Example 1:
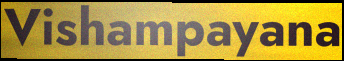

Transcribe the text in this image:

Vishampayana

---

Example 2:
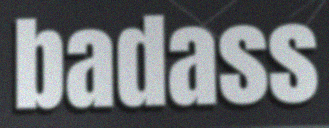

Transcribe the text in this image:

badass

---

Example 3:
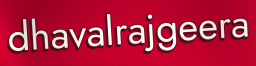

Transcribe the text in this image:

dhavalrajgeera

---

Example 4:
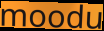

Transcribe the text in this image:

moodu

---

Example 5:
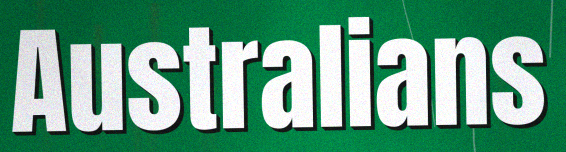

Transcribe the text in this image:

Australians